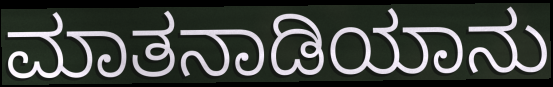
ಮಾತನಾಡಿಯಾನು